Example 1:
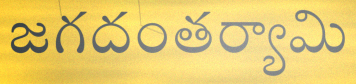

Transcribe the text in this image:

జగదంతర్యామి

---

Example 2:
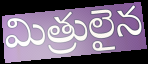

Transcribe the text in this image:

మిత్రులైన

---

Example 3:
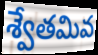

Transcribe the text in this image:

శ్వేతమివ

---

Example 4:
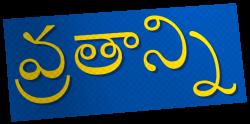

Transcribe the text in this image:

వ్రతాన్ని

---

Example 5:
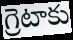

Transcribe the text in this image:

గ్రెటాకు